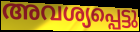
അവശ്യപ്പെട്ടു